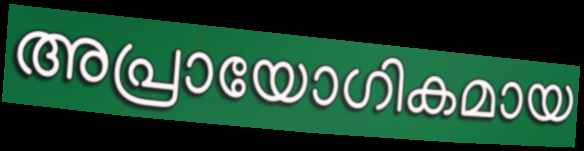
അപ്രായോഗികമായ